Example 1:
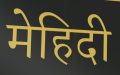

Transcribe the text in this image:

मेहिदी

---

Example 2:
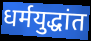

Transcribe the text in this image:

धर्मयुद्धांत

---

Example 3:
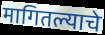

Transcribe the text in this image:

मागितल्याचे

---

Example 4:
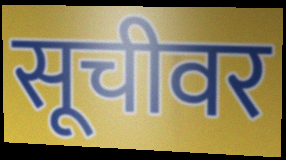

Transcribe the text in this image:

सूचीवर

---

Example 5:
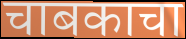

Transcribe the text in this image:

चाबकाचा